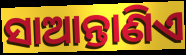
ସାଆନ୍ତାଣିଏ